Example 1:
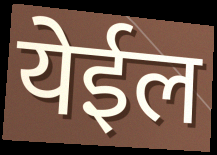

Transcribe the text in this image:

येईल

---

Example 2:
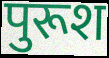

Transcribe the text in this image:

पुरूश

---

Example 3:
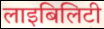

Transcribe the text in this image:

लाइबिलिटी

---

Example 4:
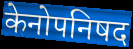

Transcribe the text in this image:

केनोपनिषद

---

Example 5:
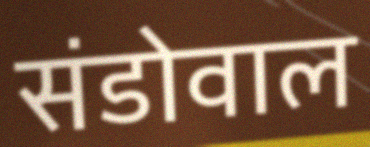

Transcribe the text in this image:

संडोवाल